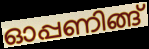
ഓപ്പണിങ്ങ്